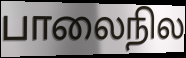
பாலைநில